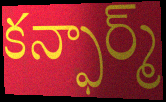
కన్ఫార్మ్